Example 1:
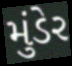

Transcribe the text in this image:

મુંડેર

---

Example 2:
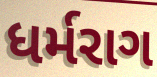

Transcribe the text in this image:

ધર્મરાગ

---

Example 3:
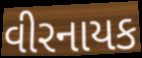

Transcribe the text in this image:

વીરનાયક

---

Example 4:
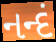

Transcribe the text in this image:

નન્દં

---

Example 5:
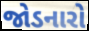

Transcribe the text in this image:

જોડનારો